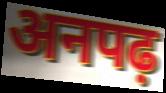
अनपढ़